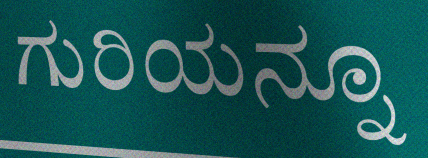
ಗುರಿಯನ್ನೂ